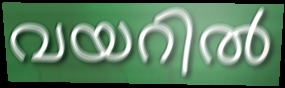
വയറിൽ